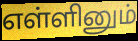
எள்ளினும்